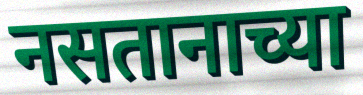
नसतानाच्या